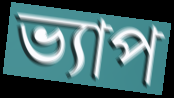
ভ্যাপ